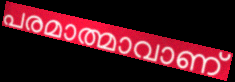
പരമാത്മാവാണ്